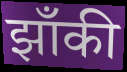
झाँकी